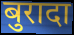
बुरादा